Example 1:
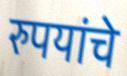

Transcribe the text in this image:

रुपयांचे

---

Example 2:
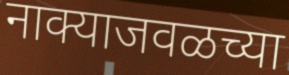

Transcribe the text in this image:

नाक्याजवळच्या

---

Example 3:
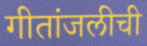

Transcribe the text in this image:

गीतांजलीची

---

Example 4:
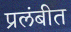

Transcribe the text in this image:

प्रलंबीत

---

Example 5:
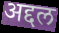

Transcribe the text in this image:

अद्दल